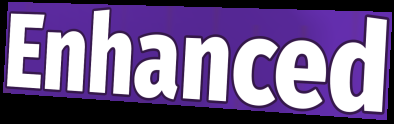
Enhanced